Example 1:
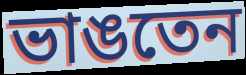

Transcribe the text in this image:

ভাঙতেন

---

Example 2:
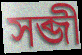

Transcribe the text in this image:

সব্জী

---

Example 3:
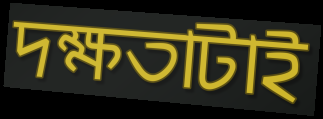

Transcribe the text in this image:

দক্ষতাটাই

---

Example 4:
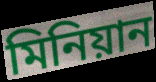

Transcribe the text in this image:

মিনিয়ান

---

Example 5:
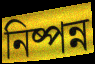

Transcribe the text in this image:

নিষ্পন্ন